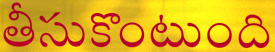
తీసుకొంటుంది